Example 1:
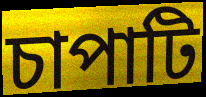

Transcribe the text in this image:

চাপাটি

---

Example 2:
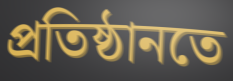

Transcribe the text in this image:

প্ৰতিষ্ঠানতে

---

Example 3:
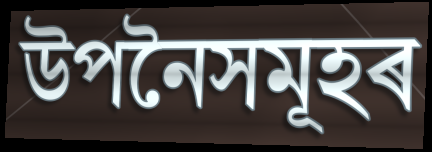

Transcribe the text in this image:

উপনৈসমূহৰ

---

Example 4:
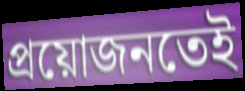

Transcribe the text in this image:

প্ৰয়োজনতেই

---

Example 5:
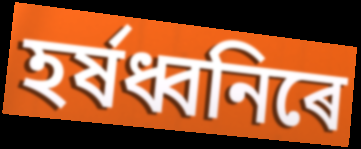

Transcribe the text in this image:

হৰ্ষধ্বনিৰে